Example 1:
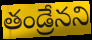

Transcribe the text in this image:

తండ్రేనని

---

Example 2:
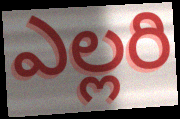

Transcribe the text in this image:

ఎల్లరి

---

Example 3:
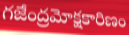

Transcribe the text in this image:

గజేంద్రమోక్షకారిణం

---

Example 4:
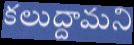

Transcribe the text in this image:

కలుద్దామని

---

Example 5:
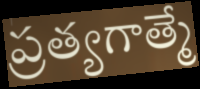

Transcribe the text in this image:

ప్రత్యగాత్మే